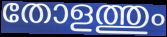
തോളത്തും